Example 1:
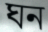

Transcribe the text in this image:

ঘন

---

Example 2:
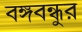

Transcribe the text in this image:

বঙ্গবন্ধুর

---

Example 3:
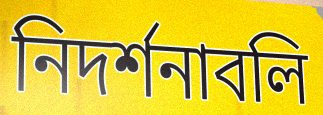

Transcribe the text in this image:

নিদর্শনাবলি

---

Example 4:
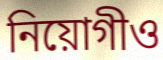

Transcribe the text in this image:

নিয়োগীও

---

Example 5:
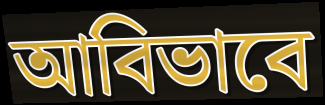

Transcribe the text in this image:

আবিভাবে